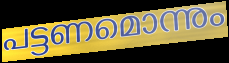
പട്ടണമൊന്നും